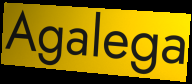
Agalega